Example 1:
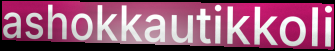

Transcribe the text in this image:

ashokkautikkoli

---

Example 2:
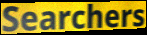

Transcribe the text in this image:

Searchers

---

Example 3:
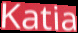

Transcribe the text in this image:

Katia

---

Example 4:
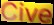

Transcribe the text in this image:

Cive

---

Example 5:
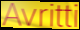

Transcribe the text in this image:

Avritti